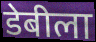
डेबीला